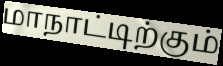
மாநாட்டிற்கும்